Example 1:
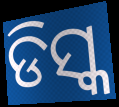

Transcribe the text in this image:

ଡିସ୍କ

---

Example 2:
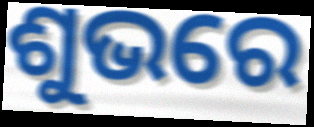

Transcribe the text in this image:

ଶୁଭରେ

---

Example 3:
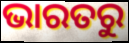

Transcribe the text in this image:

ଭାରତରୁ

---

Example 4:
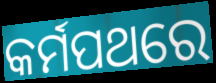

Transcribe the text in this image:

କର୍ମପଥରେ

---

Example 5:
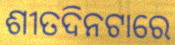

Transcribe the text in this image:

ଶୀତଦିନଟାରେ